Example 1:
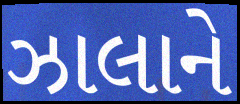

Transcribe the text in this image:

ઝાલાને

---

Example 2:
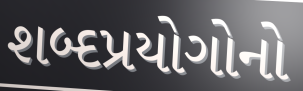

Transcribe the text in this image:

શબ્દપ્રયોગોનો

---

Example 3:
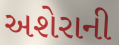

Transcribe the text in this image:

અશેરાની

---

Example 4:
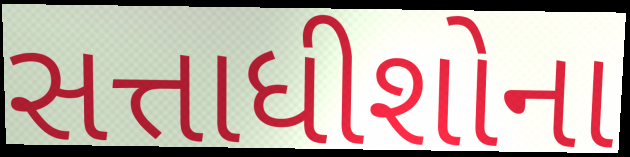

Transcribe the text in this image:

સત્તાધીશોના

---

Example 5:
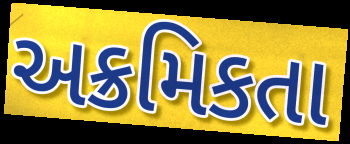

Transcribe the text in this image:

અક્રમિકતા